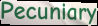
Pecuniary